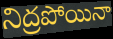
నిద్రపోయినా